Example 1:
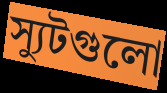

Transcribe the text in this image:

স্যুটগুলো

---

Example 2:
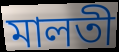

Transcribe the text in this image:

মালতী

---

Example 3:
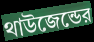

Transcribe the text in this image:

থাউজেন্ডের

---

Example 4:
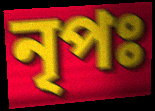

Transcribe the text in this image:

নৃপঃ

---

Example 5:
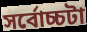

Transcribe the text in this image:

সর্বোচ্চটা